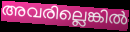
അവരില്ലെങ്കിൽ